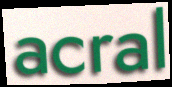
acral